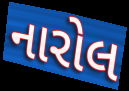
નારોલ